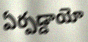
ఏర్పడ్డాయో